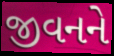
જીવનને